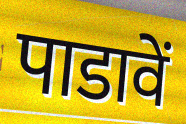
पाडावें